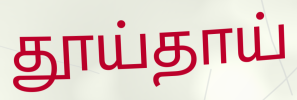
தூய்தாய்